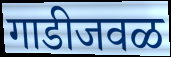
गाडीजवळ